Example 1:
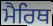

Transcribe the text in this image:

ਮੈਰਿਥ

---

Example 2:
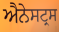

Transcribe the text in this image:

ਐਨੇਸਟ੍ਰਸ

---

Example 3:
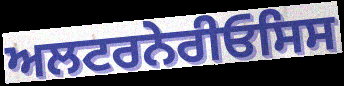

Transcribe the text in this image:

ਅਲਟਰਨੇਰੀਓਸਿਸ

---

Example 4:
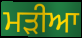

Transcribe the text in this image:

ਮਡ਼ੀਆ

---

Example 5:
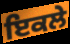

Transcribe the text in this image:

ਇਕਲੇ